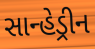
સાન્હેડ્રીન